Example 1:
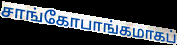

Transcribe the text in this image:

சாங்கோபாங்கமாகப்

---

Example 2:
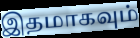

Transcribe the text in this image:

இதமாகவும்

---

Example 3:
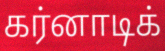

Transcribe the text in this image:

கர்னாடிக்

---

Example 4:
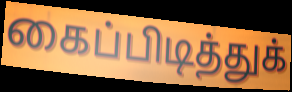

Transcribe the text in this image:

கைப்பிடித்துக்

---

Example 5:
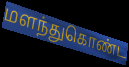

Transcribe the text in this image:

மளந்துகொண்ட